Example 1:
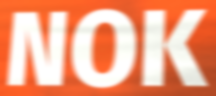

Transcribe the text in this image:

NOK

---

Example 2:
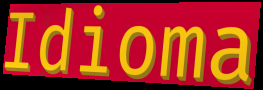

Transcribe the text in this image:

Idioma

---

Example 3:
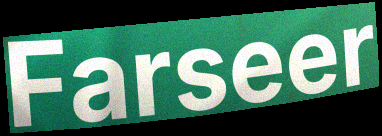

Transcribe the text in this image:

Farseer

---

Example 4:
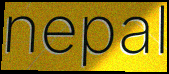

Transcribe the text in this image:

nepal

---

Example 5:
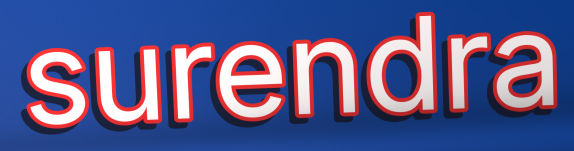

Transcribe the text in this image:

surendra